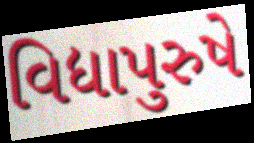
વિદ્યાપુરુષે